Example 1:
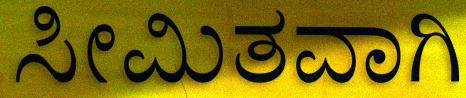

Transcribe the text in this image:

ಸೀಮಿತವಾಗಿ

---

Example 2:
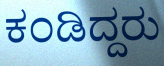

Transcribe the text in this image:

ಕಂಡಿದ್ದರು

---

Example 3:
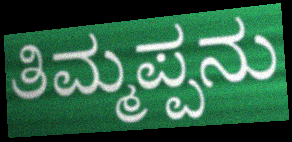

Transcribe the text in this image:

ತಿಮ್ಮಪ್ಪನು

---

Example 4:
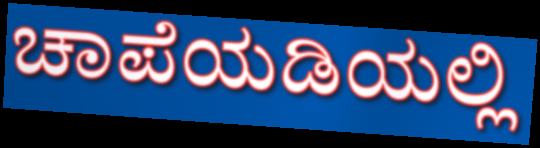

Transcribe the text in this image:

ಚಾಪೆಯಡಿಯಲ್ಲಿ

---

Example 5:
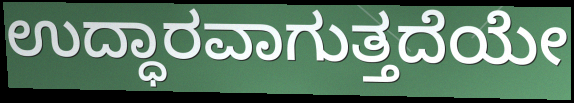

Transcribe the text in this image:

ಉದ್ಧಾರವಾಗುತ್ತದೆಯೇ